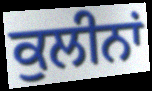
ਕੁਲੀਨਾਂ